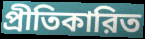
প্রীতিকারিত